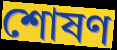
শোষণ